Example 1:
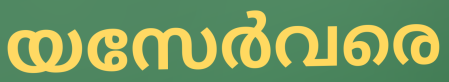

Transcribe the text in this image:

യസേർവരെ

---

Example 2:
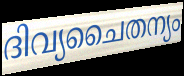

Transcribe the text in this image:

ദിവ്യചൈതന്യം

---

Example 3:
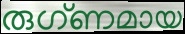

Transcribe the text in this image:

രുഗ്ണമായ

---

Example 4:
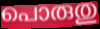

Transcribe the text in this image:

പൊരുതു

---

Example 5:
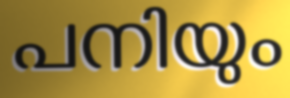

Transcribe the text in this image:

പനിയും